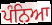
ਪੰਨਿਆ